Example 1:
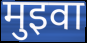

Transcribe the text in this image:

मुइवा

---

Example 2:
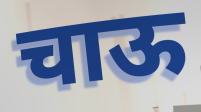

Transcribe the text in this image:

चाऊ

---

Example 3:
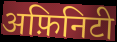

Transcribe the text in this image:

अफ़िनिटी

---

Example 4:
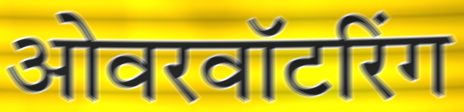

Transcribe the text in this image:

ओवरवॉटरिंग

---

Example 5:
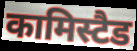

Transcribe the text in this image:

कामिस्टैड